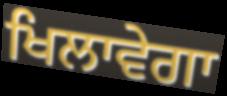
ਖਿਲਾਵੇਗਾ